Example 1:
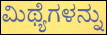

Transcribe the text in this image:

ಮಿಥ್ಯೆಗಳನ್ನು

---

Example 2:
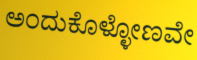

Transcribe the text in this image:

ಅಂದುಕೊಳ್ಳೋಣವೇ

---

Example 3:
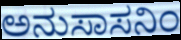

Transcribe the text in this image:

ಅನುಸಾಸನಿಂ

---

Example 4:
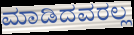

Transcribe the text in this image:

ಮಾಡಿದವರಲ್ಲ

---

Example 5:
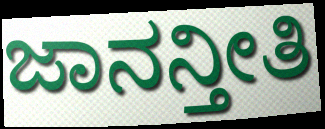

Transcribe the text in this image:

ಜಾನನ್ತೀತಿ